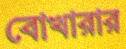
বোখারার